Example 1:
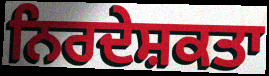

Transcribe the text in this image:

ਨਿਰਦੇਸ਼ਕਤਾ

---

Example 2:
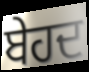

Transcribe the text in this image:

ਬੇਹਦ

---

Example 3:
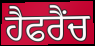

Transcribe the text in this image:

ਹੈਫਰੈਂਚ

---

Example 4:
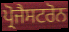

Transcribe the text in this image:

ਪ੍ਰੋਜੈਸਟਰੋਨ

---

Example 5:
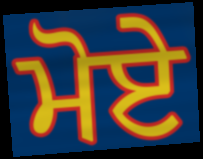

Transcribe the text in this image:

ਮੋਏ